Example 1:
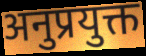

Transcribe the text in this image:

अनुप्रयुक्त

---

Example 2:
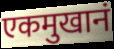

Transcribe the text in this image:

एकमुखानं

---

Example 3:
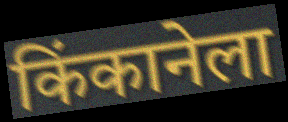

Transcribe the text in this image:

किंकानेला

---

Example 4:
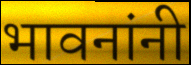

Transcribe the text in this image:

भावनांनी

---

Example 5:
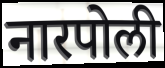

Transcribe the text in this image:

नारपोली